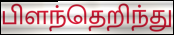
பிளந்தெறிந்து